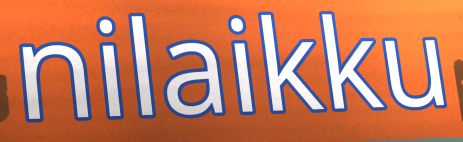
nilaikku